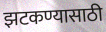
झटकण्यासाठी